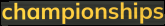
championships